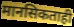
मानसिकताही